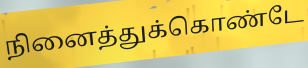
நினைத்துக்கொண்டே